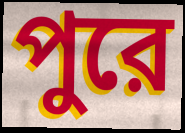
পুরে